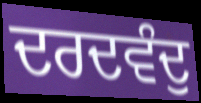
ਦਰਦਵੰਦੁ